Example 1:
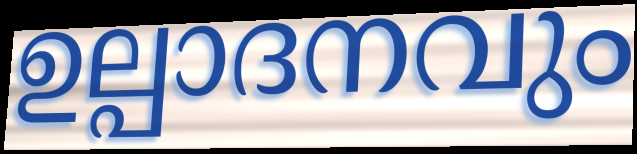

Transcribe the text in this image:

ഉല്പാദനവും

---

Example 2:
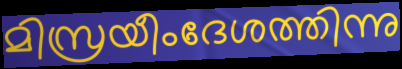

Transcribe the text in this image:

മിസ്രയീംദേശത്തിന്നു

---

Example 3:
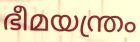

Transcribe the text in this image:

ഭീമയന്ത്രം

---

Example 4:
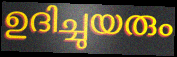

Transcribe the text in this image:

ഉദിച്ചുയരും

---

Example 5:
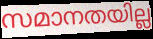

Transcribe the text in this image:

സമാനതയില്ല